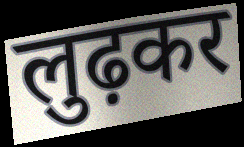
लुढ़कर